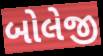
બોલેજી